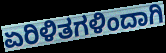
ಏರಿಳಿತಗಳಿಂದಾಗಿ